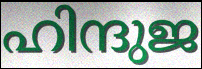
ഹിന്ദുജ